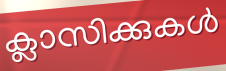
ക്ലാസിക്കുകൾ